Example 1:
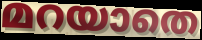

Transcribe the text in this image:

മറയാതെ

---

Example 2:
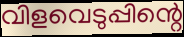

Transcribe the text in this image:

വിളവെടുപ്പിന്റെ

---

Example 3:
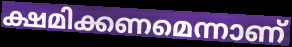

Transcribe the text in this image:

ക്ഷമിക്കണമെന്നാണ്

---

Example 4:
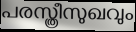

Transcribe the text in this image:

പരസ്ത്രീസുഖവും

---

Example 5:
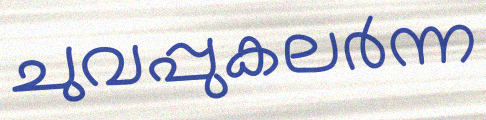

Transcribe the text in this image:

ചുവപ്പുകലർന്ന